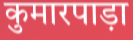
कुमारपाड़ा